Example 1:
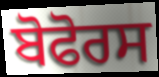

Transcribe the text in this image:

ਬੋਫੋਰਸ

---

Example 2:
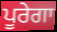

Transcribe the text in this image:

ਪੂਰੇਗਾ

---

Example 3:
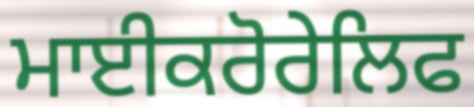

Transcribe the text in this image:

ਮਾਈਕਰੋਰੇਲਿਫ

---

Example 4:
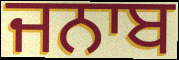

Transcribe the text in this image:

ਜਨਾਬ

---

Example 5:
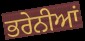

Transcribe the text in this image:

ਭਰੇਨੀਆਂ